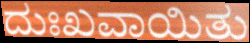
ದುಃಖವಾಯಿತು